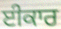
ਈਕਾਰ